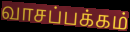
வாசப்பக்கம்